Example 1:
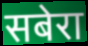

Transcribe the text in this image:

सबेरा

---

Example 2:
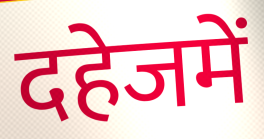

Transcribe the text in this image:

दहेजमें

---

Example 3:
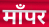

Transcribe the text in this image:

माँपर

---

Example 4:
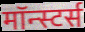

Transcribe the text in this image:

मॉन्स्टर्स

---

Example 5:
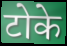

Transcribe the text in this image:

टोके